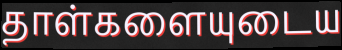
தாள்களையுடைய